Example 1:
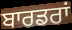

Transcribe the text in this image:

ਬਾਰਡਰਾਂ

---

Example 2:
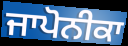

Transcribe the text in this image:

ਜਾਪੋਨੀਕਾ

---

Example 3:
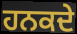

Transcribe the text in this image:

ਹਨਕਦੇ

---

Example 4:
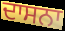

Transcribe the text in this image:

ਦਾਸਨਾ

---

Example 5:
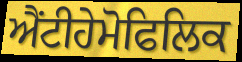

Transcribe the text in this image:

ਐਂਟੀਹੇਮੋਫਿਲਿਕ